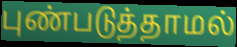
புண்படுத்தாமல்